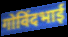
गोविंदभाई